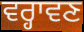
ਵਰ੍ਹਾਵਣ